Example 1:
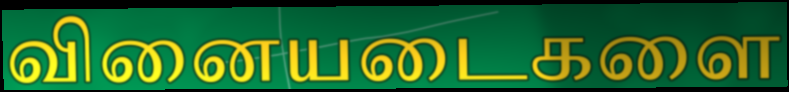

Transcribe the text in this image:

வினையடைகளை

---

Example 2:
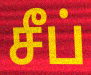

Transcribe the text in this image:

சீப்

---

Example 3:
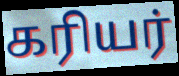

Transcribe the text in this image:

கரியர்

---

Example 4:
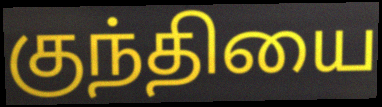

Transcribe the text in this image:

குந்தியை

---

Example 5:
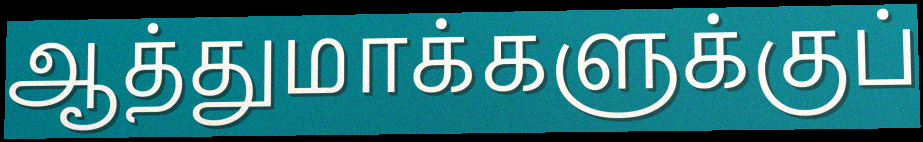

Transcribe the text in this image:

ஆத்துமாக்களுக்குப்